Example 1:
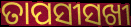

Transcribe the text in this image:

ତାପସୀସଖୀ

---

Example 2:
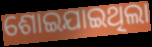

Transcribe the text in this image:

ଶୋଇଯାଇଥିଲା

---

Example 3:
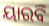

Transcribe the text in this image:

ୟାରବି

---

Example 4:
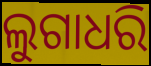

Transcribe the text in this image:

ଲୁଗାଧରି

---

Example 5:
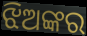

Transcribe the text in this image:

ଝିଅଙ୍କର